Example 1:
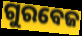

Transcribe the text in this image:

ଗୁରବେଜ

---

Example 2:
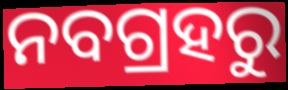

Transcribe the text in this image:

ନବଗ୍ରହରୁ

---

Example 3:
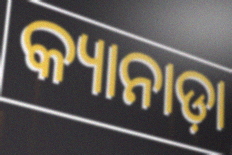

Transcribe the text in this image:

କ୍ୟାନାଡ଼ା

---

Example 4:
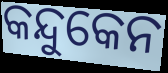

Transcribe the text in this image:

କନ୍ଦୁକେନ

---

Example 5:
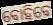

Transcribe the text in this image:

ବୋହିବେ